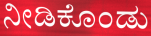
ನೀಡಿಕೊಂಡು